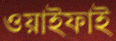
ওয়াইফাই